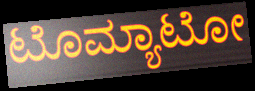
ಟೊಮ್ಯಾಟೋ